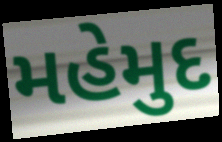
મહેમુદ